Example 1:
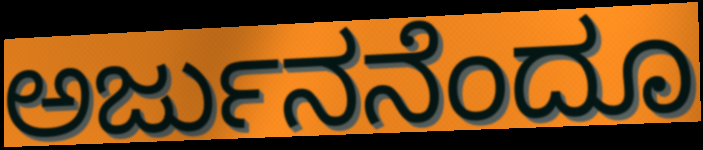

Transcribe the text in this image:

ಅರ್ಜುನನೆಂದೂ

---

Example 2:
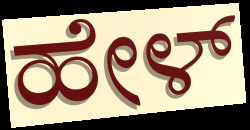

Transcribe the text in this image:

ಹೇಳ್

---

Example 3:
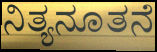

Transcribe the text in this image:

ನಿತ್ಯನೂತನೆ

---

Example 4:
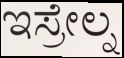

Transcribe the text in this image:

ಇಸ್ರೇಲ್ನ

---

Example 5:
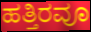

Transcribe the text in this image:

ಹತ್ತಿರವೂ